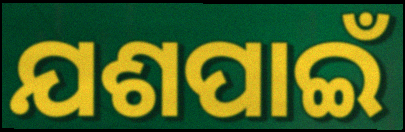
ଯଶପାଇଁ